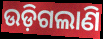
ଉଡ଼ିଗଲାଣି